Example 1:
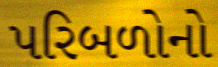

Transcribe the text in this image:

પરિબળોનો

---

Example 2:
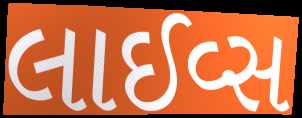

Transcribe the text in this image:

લાઈવ્સ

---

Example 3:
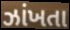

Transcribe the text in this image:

ઝાંખતા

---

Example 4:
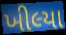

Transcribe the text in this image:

ખીલ્યા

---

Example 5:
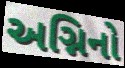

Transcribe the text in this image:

અગ્નિનો